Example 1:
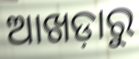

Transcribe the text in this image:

ଆଖଡ଼ାରୁ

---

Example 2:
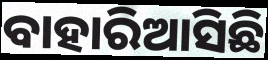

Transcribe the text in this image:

ବାହାରିଆସିଛି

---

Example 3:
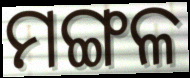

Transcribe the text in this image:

ମଙ୍ଗଳ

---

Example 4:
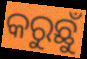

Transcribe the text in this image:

କରୁଛୁଁ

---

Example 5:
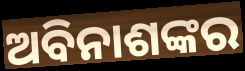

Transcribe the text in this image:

ଅବିନାଶଙ୍କର